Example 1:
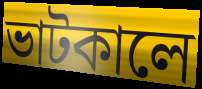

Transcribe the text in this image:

ভাটকালে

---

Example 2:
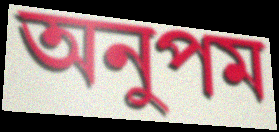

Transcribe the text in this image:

অনুপম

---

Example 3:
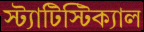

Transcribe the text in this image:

স্ট্যাটিস্টিক্যাল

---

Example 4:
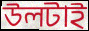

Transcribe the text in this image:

উলটাই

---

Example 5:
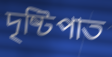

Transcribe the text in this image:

দৃষ্টিপাত